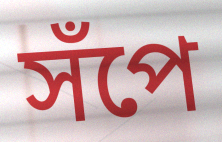
সঁপে